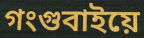
গংগুবাইয়ে